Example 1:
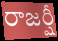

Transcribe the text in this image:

రాజర్షీ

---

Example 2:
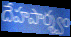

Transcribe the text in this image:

దేహపార్శ్వం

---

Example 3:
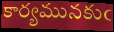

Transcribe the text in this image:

కార్యమునకుఁ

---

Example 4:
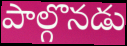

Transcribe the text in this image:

పాల్గొనడు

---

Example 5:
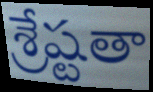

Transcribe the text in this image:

శ్రేష్టతా